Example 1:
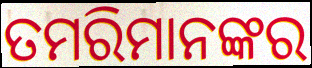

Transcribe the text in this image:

ତମରିମାନଙ୍କର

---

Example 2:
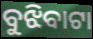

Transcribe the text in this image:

ବୁଝିବାଟା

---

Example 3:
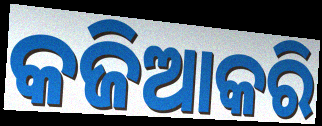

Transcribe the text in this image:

କଜିଆକରି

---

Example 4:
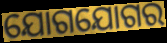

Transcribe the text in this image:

ଯୋଗଯୋଗର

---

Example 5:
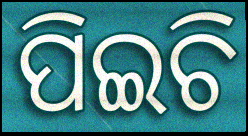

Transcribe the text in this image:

ପିଇଚି